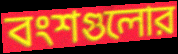
বংশগুলোর